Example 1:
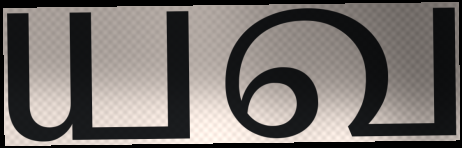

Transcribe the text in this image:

யவ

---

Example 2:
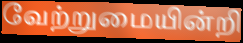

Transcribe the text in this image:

வேற்றுமையின்றி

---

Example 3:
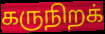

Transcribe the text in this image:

கருநிறக்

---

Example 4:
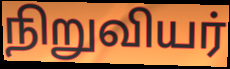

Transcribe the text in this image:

நிறுவியர்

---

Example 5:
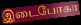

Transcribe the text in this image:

இடைபோகா